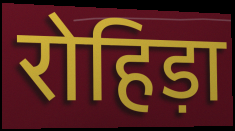
रोहिड़ा